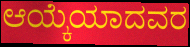
ಆಯ್ಕೆಯಾದವರ